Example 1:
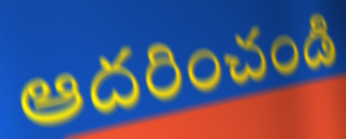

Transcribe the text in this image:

ఆదరించండి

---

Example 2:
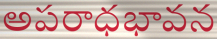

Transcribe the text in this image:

అపరాధభావన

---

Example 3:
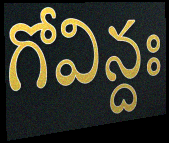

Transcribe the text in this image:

గోవిన్దః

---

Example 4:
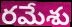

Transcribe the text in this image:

రమేశు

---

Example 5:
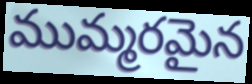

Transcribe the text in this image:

ముమ్మరమైన